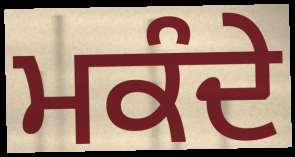
ਮਕੰਦੇ